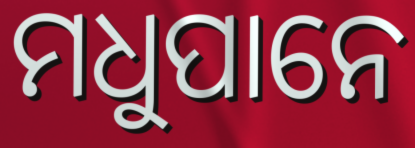
ମଧୁପାନେ